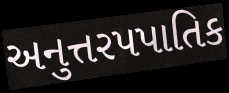
અનુત્તરપપાતિક